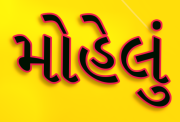
મોહેલું